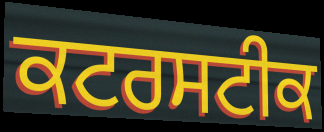
ਕਟਰਸਟੀਕ